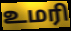
உமரி